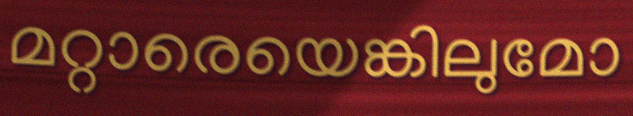
മറ്റാരെയെങ്കിലുമോ